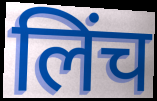
लिंच